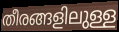
തീരങ്ങളിലുള്ള